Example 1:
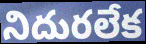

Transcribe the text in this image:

నిదురలేక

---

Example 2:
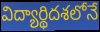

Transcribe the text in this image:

విద్యార్థిదశలోనే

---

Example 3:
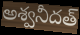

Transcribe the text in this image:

అశ్వనీదత్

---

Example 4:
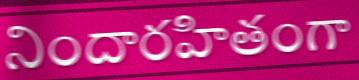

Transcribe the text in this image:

నిందారహితంగా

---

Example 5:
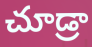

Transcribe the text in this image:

చూడ్రా